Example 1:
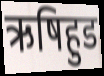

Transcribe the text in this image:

ऋषिहुड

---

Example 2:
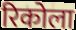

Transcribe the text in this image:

रिकोला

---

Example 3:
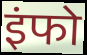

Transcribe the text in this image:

इंफो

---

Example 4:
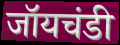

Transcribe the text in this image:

जॉयचंडी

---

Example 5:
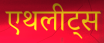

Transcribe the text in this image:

एथलीट्स